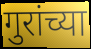
गुरांच्या